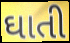
ઘાતી